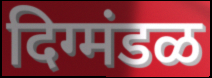
दिग्मंडळ